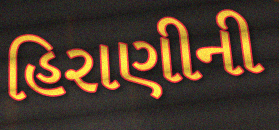
હિરાણીની